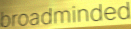
broadminded